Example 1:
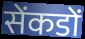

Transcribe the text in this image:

सेंकडों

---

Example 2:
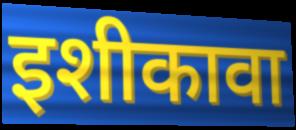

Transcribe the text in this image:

इशीकावा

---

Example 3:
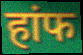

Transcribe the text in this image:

हांफ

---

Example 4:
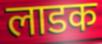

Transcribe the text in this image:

लाडक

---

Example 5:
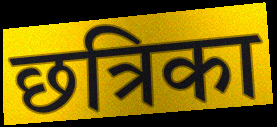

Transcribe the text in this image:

छत्रिका